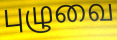
புழுவை